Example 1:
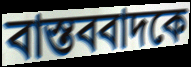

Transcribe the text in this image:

বাস্তববাদকে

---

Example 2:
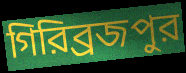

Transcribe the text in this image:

গিরিব্রজপুর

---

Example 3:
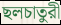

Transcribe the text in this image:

ছলচাতুরী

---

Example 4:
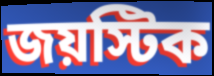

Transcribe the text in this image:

জয়স্টিক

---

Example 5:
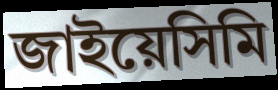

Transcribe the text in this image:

জাইয়েসিমি